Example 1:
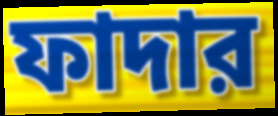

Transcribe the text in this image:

ফাদার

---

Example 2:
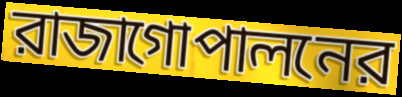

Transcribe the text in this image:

রাজাগোপালনের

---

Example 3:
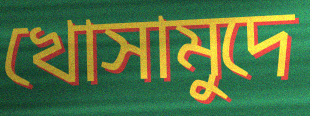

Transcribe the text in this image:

খোসামুদে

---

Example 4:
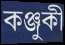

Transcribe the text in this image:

কঞ্জুকী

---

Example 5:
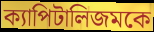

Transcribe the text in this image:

ক্যাপিটালিজমকে